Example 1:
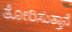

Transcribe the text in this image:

ತೋರಿಸುತ್ತಾನೆ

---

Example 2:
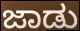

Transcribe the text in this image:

ಜಾಡು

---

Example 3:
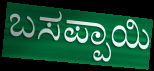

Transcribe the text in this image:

ಬಸಪ್ಪಾಯಿ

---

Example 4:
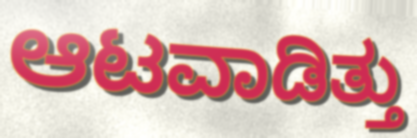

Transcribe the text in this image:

ಆಟವಾಡಿತ್ತು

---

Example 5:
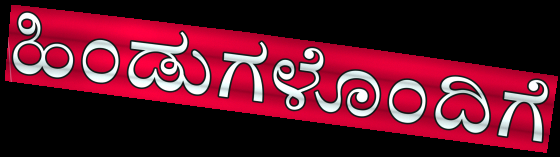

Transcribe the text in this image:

ಹಿಂಡುಗಳೊಂದಿಗೆ